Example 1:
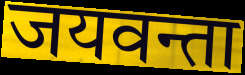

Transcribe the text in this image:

जयवन्ता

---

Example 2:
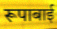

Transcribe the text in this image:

रूपाबाई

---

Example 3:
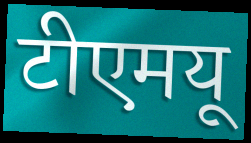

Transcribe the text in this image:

टीएमयू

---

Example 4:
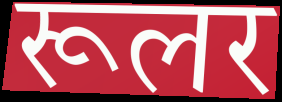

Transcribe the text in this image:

रूलर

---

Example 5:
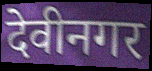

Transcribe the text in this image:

देवीनगर